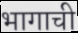
भागाची